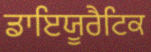
ਡਾਇਯੂਰੈਟਿਕ